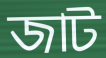
জাট